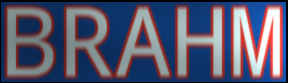
BRAHM